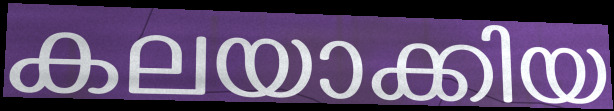
കലയാക്കിയ